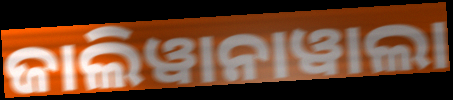
ଜାଲିୱାନାୱାଲା